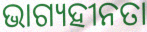
ଭାଗ୍ୟହୀନତା